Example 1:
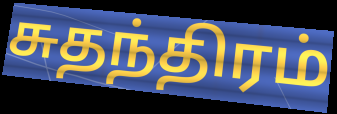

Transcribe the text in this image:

சுதந்திரம்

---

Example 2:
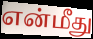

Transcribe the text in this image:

என்மீது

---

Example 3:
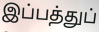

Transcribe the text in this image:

இப்பத்துப்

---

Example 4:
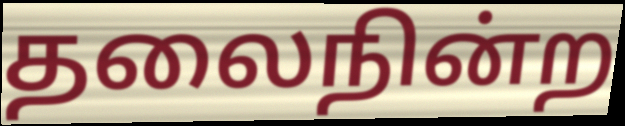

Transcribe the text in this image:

தலைநின்ற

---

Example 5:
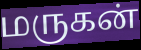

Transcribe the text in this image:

மருகன்